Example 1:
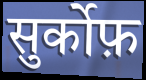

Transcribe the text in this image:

सुर्कोफ़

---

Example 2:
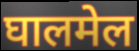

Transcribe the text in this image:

घालमेल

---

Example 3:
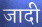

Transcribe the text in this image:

जादी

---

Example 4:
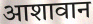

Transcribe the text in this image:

आशावान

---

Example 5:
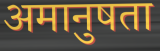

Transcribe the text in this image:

अमानुषता